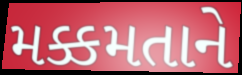
મક્કમતાને